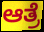
ಆತ್ರೆ